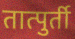
तात्पुर्ती